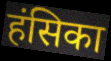
हंसिका